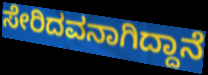
ಸೇರಿದವನಾಗಿದ್ದಾನೆ